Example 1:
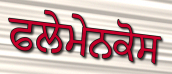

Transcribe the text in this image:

ਫਲੇਮੇਨਕੋਸ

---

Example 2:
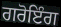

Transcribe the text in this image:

ਗਰੋਇੰਗ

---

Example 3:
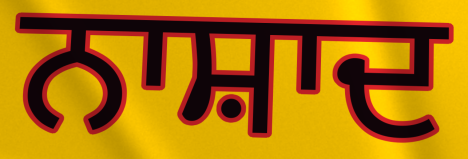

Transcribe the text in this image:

ਨਾਸ਼ਾਦ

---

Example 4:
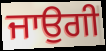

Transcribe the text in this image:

ਜਾਉਗੀ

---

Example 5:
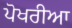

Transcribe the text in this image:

ਪੋਖਰੀਆ